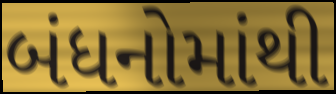
બંધનોમાંથી